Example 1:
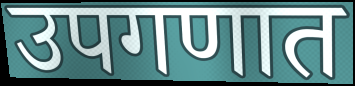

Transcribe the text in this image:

उपगणात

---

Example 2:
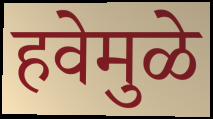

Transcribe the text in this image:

हवेमुळे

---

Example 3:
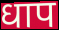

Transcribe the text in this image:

धाप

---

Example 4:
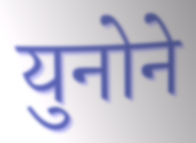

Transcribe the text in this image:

युनोने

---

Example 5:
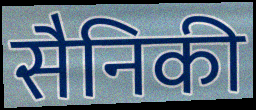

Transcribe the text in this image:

सैनिकी